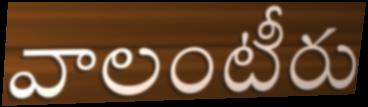
వాలంటీరు